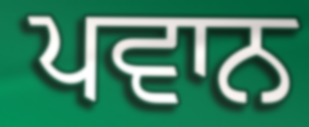
ਪਵਾਨ